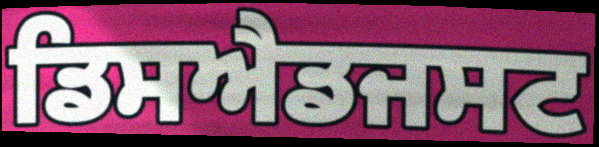
ਡਿਸਐਡਜਸਟ